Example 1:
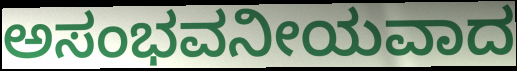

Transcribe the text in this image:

ಅಸಂಭವನೀಯವಾದ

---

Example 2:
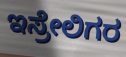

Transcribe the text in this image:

ಇಸ್ರೇಲಿಗರ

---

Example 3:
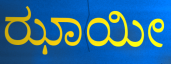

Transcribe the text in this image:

ಝಾಯೀ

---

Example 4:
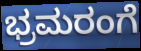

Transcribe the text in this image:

ಭ್ರಮರಂಗೆ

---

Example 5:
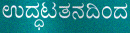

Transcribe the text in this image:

ಉದ್ಧಟತನದಿಂದ